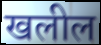
खलील